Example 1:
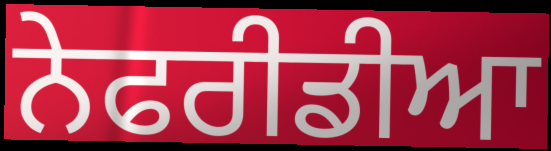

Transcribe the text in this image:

ਨੇਫਰੀਡੀਆ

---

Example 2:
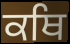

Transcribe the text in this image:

ਕਥਿ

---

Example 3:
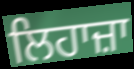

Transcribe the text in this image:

ਲਿਹਾਜ਼ਾ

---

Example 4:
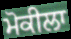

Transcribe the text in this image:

ਮੋਕੀਲਾ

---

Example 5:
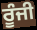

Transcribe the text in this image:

ਰੂੰਜੀ